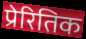
प्रेरितिक